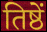
तिष्ठें